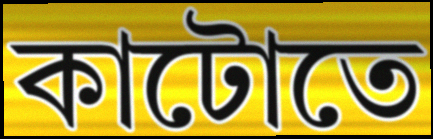
কাটোতে